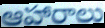
ఆహారాలు